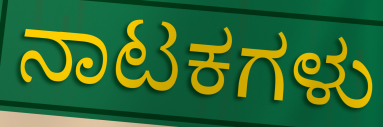
ನಾಟಕಗಳು